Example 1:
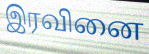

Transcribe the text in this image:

இரவினை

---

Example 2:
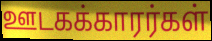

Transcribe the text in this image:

ஊடகக்காரர்கள்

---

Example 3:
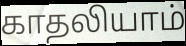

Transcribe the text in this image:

காதலியாம்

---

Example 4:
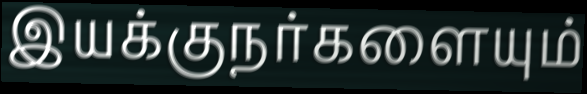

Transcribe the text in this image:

இயக்குநர்களையும்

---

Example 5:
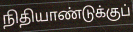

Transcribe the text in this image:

நிதியாண்டுக்குப்